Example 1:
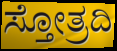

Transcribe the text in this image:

ಸ್ತೋತ್ರದಿ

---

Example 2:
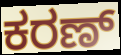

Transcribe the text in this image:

ಕರಣ್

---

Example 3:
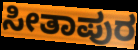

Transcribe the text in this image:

ಸೀತಾಪುರ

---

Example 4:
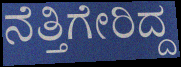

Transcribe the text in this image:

ನೆತ್ತಿಗೇರಿದ್ದ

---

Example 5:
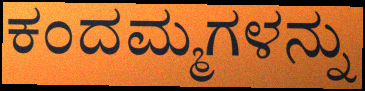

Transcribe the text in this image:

ಕಂದಮ್ಮಗಳನ್ನು